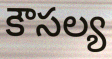
కౌసల్య